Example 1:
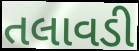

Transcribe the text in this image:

તલાવડી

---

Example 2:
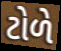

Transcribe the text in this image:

ટોળે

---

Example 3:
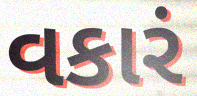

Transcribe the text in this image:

વકારં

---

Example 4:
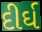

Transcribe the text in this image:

દીર્ઘ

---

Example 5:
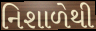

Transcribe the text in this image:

નિશાળેથી